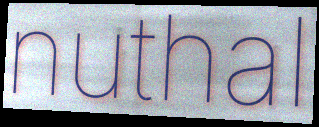
nuthal